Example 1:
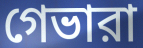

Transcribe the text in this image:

গেভারা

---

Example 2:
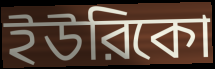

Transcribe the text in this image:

ইউরিকো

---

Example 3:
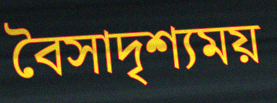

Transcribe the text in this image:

বৈসাদৃশ্যময়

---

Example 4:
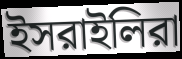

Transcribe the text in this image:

ইসরাইলিরা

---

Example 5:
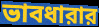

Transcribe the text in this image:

ভাবধারার